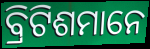
ବ୍ରିଟିଶମାନେ